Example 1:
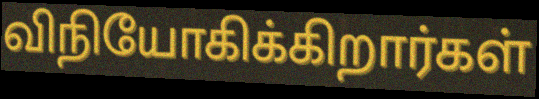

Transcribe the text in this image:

விநியோகிக்கிறார்கள்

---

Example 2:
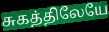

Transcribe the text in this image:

சுகத்திலேயே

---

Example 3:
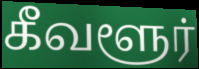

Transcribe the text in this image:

கீவளூர்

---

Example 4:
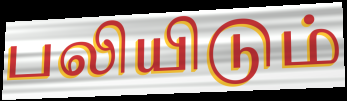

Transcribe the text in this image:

பலியிடும்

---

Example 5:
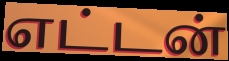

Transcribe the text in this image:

எட்டன்